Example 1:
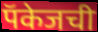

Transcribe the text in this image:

पॅकेजची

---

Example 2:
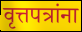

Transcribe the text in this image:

वृत्तपत्रांना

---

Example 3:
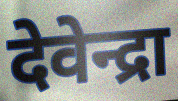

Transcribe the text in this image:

देवेन्द्रा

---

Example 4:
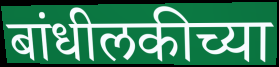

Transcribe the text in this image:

बांधीलकीच्या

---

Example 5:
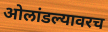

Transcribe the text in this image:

ओलांडल्यावरच